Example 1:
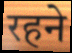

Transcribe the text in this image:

रहने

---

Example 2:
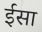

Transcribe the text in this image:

ईसा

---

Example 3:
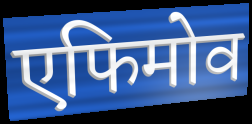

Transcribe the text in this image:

एफिमोव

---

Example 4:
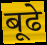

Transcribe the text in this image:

बूढे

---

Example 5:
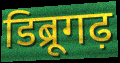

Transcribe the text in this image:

डिब्रूगढ़